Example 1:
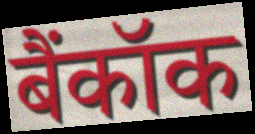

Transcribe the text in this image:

बैंकॉक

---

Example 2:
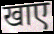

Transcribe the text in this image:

खाए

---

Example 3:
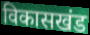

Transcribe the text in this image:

विकासखंड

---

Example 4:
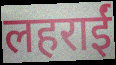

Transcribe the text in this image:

लहराईं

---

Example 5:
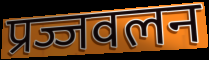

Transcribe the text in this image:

प्रज्जवलन